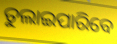
ତୁଲାଇପାରିବେ